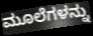
ಮೂಲೆಗಳನ್ನು